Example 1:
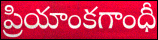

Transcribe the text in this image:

ప్రియాంకగాంధీ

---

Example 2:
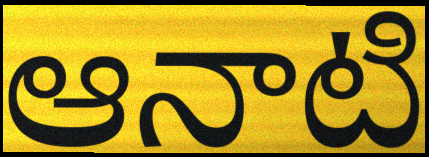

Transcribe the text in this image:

ఆనాటి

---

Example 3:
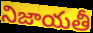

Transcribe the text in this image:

నిజాయతీ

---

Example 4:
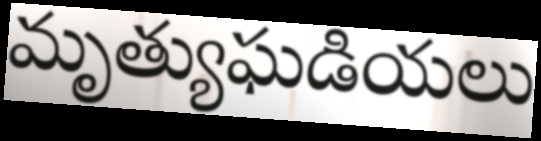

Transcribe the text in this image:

మృత్యుఘడియలు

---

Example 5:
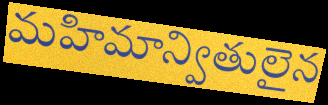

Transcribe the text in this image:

మహిమాన్వితులైన